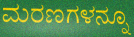
ಮರಣಗಳನ್ನೂ